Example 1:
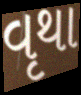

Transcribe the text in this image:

વૃથા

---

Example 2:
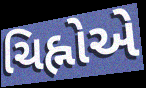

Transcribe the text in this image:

ચિહ્નોએ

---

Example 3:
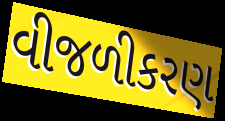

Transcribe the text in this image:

વીજળીકરણ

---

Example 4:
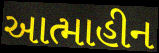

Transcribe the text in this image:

આત્માહીન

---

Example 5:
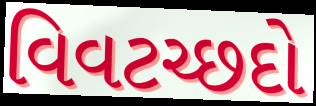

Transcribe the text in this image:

વિવટચ્છદો